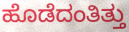
ಹೊಡೆದಂತಿತ್ತು